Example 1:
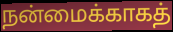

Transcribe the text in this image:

நன்மைக்காகத்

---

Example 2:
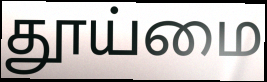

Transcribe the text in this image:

தூய்மை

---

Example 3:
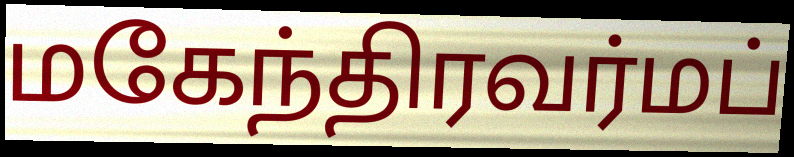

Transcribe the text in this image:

மகேந்திரவர்மப்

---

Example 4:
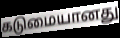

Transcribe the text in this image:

கடுமையானது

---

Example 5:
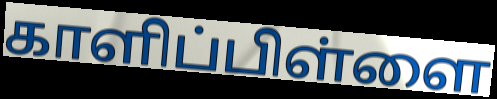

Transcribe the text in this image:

காளிப்பிள்ளை